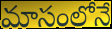
మాసంలోనే